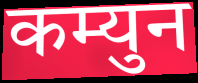
कम्युन